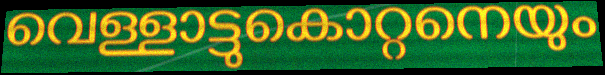
വെള്ളാട്ടുകൊറ്റനെയും